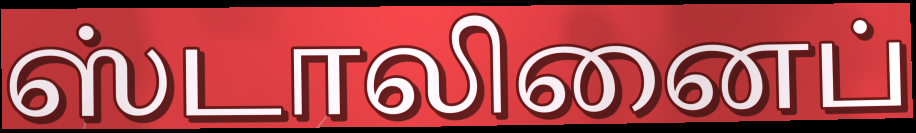
ஸ்டாலினைப்